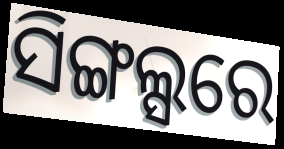
ସିଙ୍ଗଲ୍ସରେ